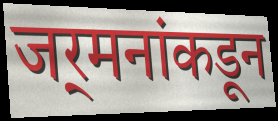
जर्मनांकडून